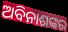
ଅବିନାଶଙ୍କର